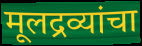
मूलद्रव्यांचा